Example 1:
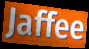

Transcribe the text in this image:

Jaffee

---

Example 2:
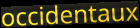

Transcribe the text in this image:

occidentaux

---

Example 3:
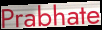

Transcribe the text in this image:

Prabhate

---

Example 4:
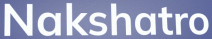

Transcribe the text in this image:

Nakshatro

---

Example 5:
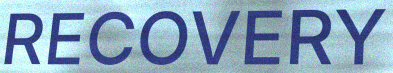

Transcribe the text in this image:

RECOVERY